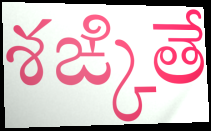
శఙ్కితే